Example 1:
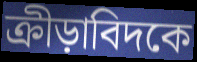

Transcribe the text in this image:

ক্রীড়াবিদকে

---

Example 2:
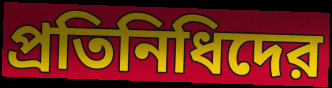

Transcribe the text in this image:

প্রতিনিধিদের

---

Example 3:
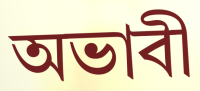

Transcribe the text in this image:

অভাবী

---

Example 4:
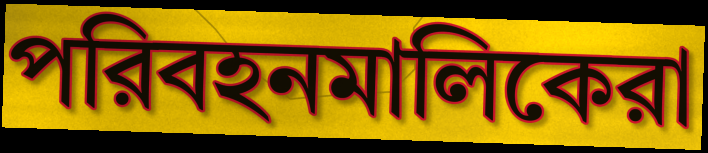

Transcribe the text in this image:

পরিবহনমালিকেরা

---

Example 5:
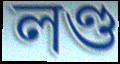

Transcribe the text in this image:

লণ্ড